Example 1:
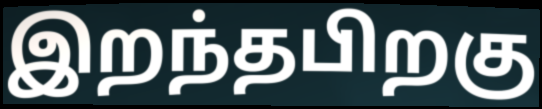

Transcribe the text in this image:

இறந்தபிறகு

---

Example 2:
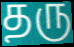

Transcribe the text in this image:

தரு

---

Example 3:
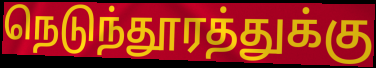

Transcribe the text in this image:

நெடுந்தூரத்துக்கு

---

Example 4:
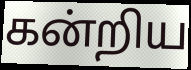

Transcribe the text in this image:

கன்றிய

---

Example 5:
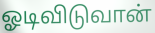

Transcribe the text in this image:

ஓடிவிடுவான்